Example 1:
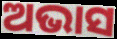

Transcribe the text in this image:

ଅଭାସ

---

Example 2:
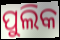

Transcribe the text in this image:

ପୁଲିକ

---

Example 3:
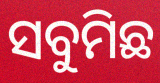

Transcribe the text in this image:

ସବୁମିଛ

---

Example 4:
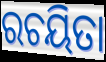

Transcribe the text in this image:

ରଚୟିତା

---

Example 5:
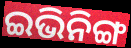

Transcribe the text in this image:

ଇଭିନିଙ୍ଗ